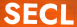
SECL